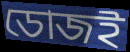
ডোজই